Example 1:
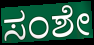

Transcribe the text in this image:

ಸಂಶೇ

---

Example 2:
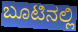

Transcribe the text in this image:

ಬೂಟಿನಲ್ಲಿ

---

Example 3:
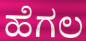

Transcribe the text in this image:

ಹೆಗಲ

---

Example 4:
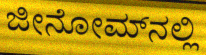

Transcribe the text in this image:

ಜೀನೋಮ್‌ನಲ್ಲಿ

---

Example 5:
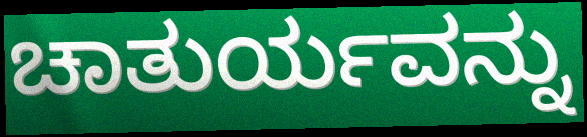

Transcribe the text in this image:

ಚಾತುರ್ಯವನ್ನು